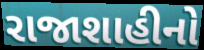
રાજાશાહીનો